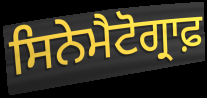
ਸਿਨੇਮੈਟੋਗ੍ਰਾਫ਼